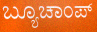
ಬ್ಯೂಚಾಂಪ್